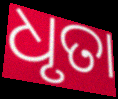
ଧୃତା